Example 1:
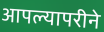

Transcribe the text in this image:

आपल्यापरीने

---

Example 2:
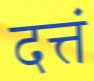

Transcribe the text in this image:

दत्तं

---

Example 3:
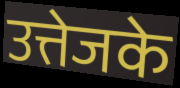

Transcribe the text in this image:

उत्तेजके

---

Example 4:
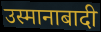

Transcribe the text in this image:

उस्मानाबादी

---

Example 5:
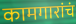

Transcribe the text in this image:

कामगारांचं